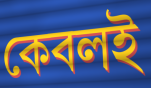
কেবলই